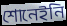
শোনেইনি